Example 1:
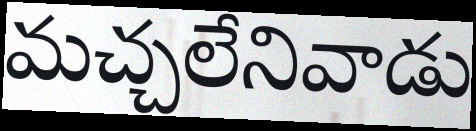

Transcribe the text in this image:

మచ్చలేనివాడు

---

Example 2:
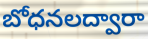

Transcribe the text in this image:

బోధనలద్వారా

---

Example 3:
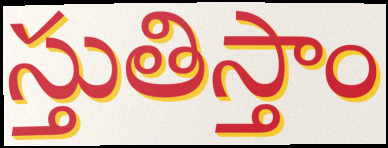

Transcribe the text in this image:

స్తుతిస్తాం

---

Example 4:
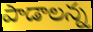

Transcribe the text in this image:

పాడాలన్న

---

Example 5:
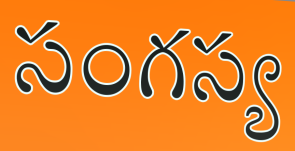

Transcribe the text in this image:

సంగస్య